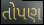
તોપણ